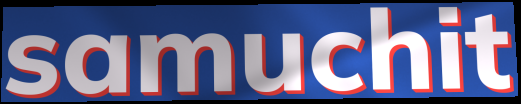
samuchit